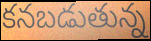
కనబడుతున్న